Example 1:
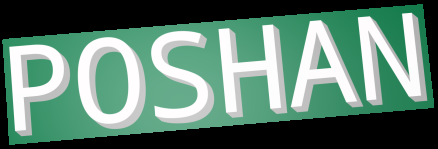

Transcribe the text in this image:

POSHAN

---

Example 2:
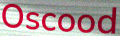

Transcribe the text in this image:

Oscood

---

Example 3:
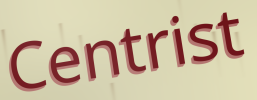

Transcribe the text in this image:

Centrist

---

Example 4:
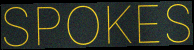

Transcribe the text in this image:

SPOKES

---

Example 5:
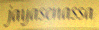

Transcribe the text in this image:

jayasenassa